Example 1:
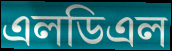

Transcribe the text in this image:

এলডিএল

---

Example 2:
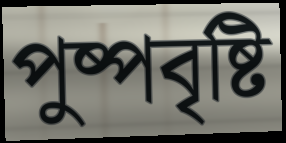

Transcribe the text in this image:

পুষ্পবৃষ্টি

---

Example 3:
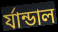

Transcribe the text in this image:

র্যান্ডাল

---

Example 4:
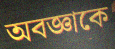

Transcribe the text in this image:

অবজ্ঞাকে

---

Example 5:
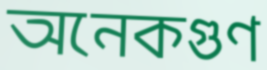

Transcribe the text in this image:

অনেকগুণ